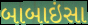
બાબાઇંસા